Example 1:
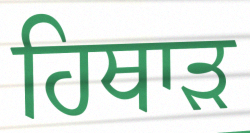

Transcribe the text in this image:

ਹਿਥਾੜ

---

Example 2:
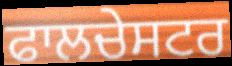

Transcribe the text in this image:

ਫਾਲਚੇਸਟਰ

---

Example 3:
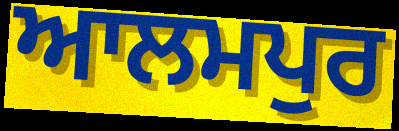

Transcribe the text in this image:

ਆਲਮਪੁਰ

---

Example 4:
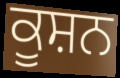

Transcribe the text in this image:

ਕੂਸ਼ਨ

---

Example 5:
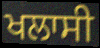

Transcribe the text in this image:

ਖਲਾਸੀ